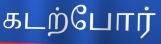
கடற்போர்